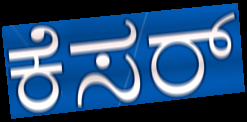
ಕೆಸರ್